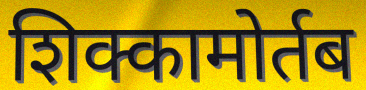
शिक्कामोर्तब